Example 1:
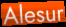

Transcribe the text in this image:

Alesur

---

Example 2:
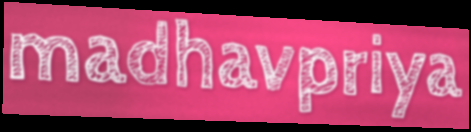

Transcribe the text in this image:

madhavpriya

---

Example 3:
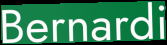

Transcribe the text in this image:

Bernardi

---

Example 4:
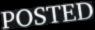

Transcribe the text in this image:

POSTED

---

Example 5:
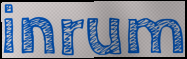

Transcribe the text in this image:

inrum